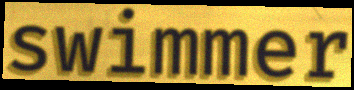
swimmer